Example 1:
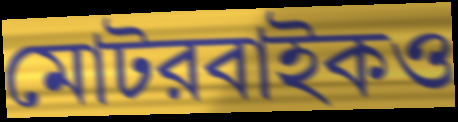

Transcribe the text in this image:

মোটরবাইকও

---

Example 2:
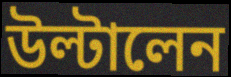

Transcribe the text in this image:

উল্টালেন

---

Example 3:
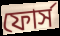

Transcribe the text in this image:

ফোর্স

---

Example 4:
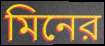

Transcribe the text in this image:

মিনের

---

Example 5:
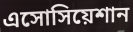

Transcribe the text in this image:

এসোসিয়েশান